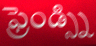
ఫ్రెండ్స్ని